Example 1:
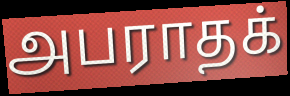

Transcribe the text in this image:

அபராதக்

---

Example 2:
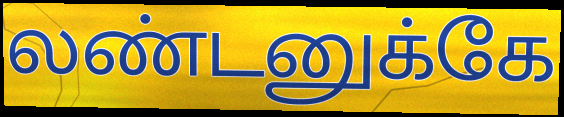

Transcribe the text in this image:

லண்டனுக்கே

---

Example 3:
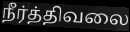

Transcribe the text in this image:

நீர்த்திவலை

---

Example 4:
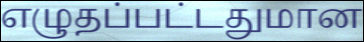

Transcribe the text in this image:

எழுதப்பட்டதுமான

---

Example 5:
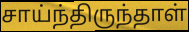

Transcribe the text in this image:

சாய்ந்திருந்தாள்